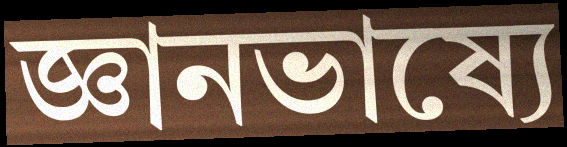
জ্ঞানভাষ্যে